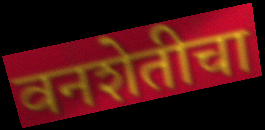
वनशेतीचा